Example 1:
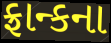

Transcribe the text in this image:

ફ્રાન્કના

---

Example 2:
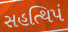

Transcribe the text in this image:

સહત્થિપં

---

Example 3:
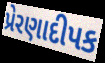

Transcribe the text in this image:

પ્રેરણાદીપક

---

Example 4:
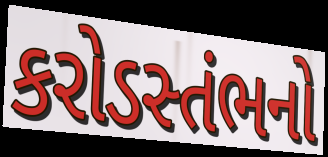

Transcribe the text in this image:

કરોડસ્તંભનો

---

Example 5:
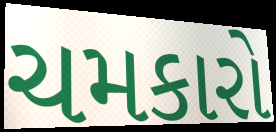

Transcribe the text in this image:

ચમકારો